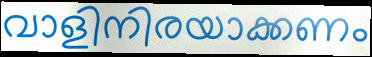
വാളിനിരയാക്കണം